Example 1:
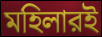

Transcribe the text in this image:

মহিলারই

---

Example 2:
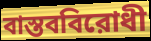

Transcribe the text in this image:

বাস্তববিরোধী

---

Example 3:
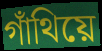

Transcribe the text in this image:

গাঁথিয়ে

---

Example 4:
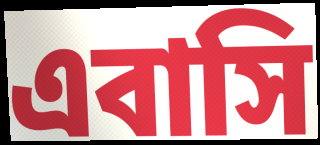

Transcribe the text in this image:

এবাসি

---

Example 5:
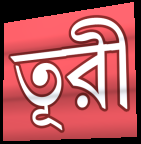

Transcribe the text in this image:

তূরী